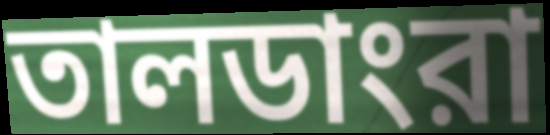
তালডাংরা